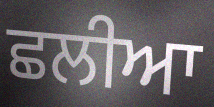
ਛਲੀਆ